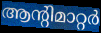
ആന്റിമാറ്റർ